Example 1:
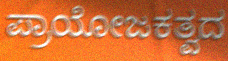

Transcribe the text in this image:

ಪ್ರಾಯೋಜಕತ್ವದ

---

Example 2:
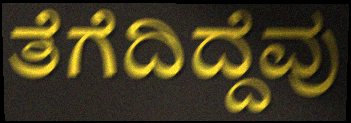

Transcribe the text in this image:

ತೆಗೆದಿದ್ದೆವು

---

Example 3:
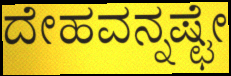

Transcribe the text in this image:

ದೇಹವನ್ನಷ್ಟೇ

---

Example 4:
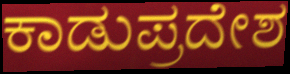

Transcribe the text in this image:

ಕಾಡುಪ್ರದೇಶ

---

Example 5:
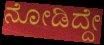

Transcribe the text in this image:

ನೋಡಿದ್ದೇ